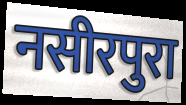
नसीरपुरा